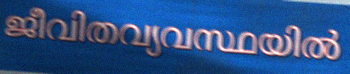
ജീവിതവ്യവസ്ഥയിൽ